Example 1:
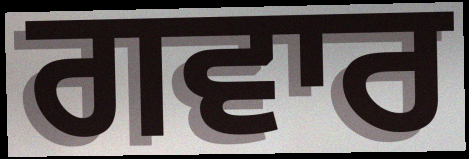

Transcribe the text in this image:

ਗਵਾਰ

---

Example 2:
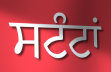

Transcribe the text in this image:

ਸਟੰਟਾਂ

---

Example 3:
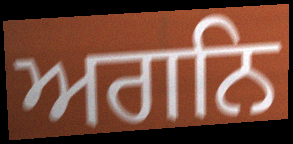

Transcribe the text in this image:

ਅਗਨਿ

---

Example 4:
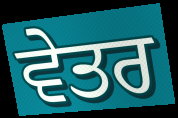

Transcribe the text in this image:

ਵੇਤਰ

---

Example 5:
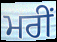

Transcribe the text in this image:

ਮਰੀਂ